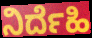
ನಿರ್ದೆಹಿ